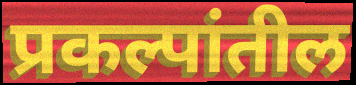
प्रकल्पांतील